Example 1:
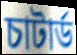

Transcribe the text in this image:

চাটার্ড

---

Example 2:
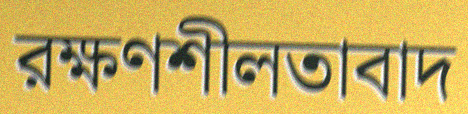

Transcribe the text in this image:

রক্ষণশীলতাবাদ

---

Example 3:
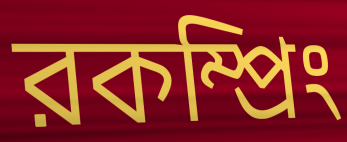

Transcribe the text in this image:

রকম্প্রিং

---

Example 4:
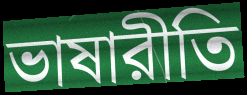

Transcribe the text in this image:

ভাষারীতি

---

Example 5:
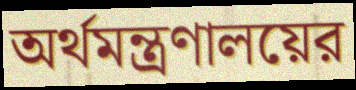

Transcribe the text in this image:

অর্থমন্ত্রণালয়ের